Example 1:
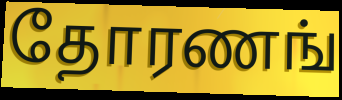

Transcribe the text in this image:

தோரணங்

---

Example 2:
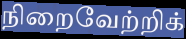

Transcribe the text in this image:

நிறைவேற்றிக்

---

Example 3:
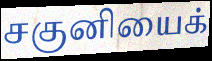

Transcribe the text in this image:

சகுனியைக்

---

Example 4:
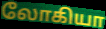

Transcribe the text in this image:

லோகியா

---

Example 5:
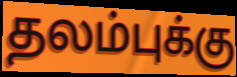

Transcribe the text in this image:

தலம்புக்கு